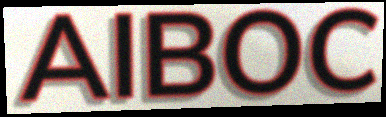
AIBOC